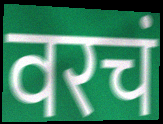
वरचं